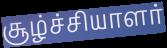
சூழ்ச்சியாளர்